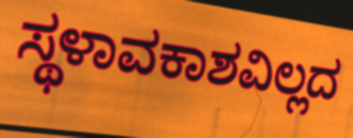
ಸ್ಥಳಾವಕಾಶವಿಲ್ಲದ